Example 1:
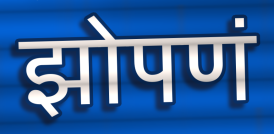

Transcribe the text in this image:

झोपणं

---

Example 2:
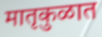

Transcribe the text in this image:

मातृकुळात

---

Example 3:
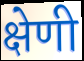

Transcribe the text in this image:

क्षेणी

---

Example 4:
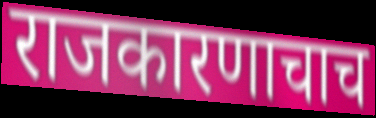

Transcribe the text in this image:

राजकारणाचाच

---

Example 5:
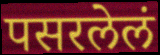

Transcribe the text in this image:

पसरलेलं